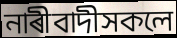
নাৰীবাদীসকলে